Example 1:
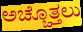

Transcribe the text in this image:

ಅಚ್ಚೊತ್ತಲು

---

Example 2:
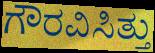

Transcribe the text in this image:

ಗೌರವಿಸಿತ್ತು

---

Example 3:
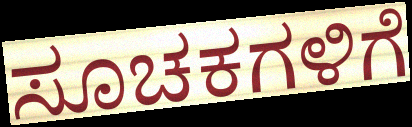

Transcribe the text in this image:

ಸೂಚಕಗಳಿಗೆ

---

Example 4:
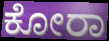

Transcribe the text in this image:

ಕೋರಾ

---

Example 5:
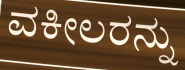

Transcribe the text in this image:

ವಕೀಲರನ್ನು